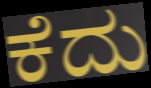
ಕೆದು